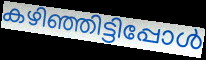
കഴിഞ്ഞിട്ടിപ്പോൾ